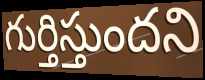
గుర్తిస్తుందని